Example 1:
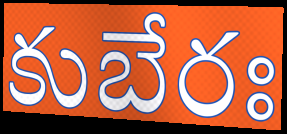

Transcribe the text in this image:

కుబేరః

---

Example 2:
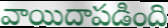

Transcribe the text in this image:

వాయిదాపడింది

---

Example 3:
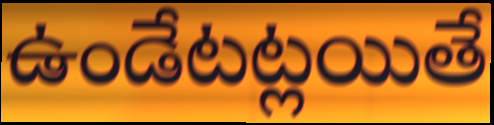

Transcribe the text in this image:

ఉండేటట్లయితే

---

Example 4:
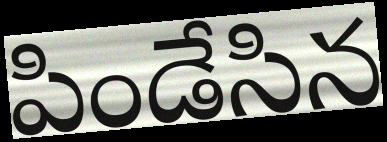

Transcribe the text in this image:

పిండేసిన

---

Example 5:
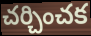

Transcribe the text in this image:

చర్చించక